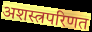
अशस्त्रपरिणत